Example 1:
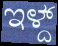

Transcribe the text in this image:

ಇಳ್ದ್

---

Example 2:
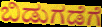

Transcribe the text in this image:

ಬಿಡುಗಡೆಗೆ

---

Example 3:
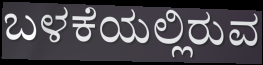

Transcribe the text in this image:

ಬಳಕೆಯಲ್ಲಿರುವ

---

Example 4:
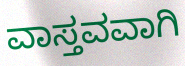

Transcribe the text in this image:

ವಾಸ್ತವವಾಗಿ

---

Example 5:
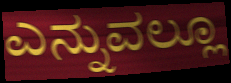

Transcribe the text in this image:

ಎನ್ನುವಲ್ಲೂ